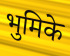
भुमिके